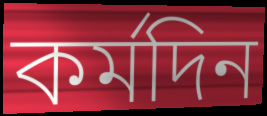
কৰ্মদিন